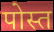
पोस्त